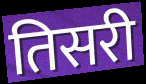
तिसरी